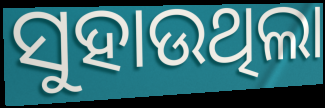
ସୁହାଉଥିଲା